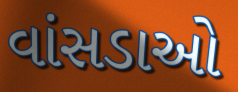
વાંસડાઓ